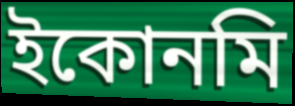
ইকোনমি